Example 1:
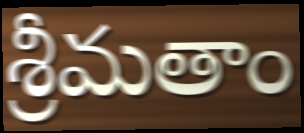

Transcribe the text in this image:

శ్రీమతాం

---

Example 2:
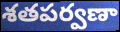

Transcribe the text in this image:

శతపర్వణా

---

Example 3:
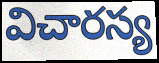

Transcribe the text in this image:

విచారస్య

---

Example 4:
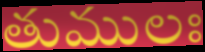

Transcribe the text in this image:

తుములః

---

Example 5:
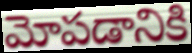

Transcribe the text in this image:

మోపడానికి